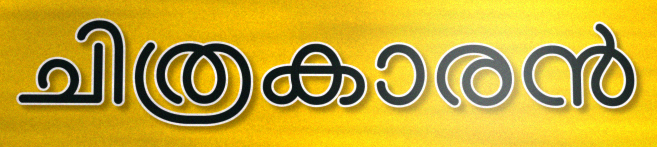
ചിത്രകാരൻ